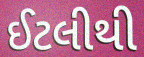
ઈટલીથી